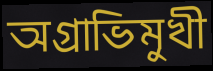
অগ্রাভিমুখী